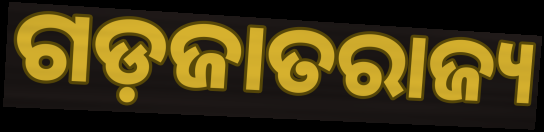
ଗଡ଼ଜାତରାଜ୍ୟ